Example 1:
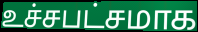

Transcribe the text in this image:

உச்சபட்சமாக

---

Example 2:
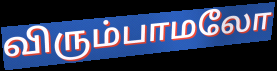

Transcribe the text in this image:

விரும்பாமலோ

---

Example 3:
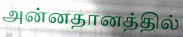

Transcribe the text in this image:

அன்னதானத்தில்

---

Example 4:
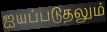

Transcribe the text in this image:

ஐயப்படுதலும்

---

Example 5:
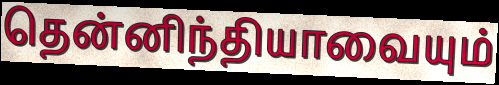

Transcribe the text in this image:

தென்னிந்தியாவையும்